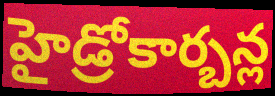
హైడ్రోకార్బన్ల